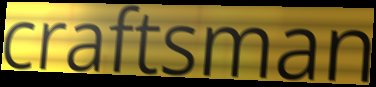
craftsman